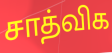
சாத்விக